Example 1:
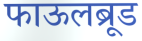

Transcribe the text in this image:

फाऊलब्रूड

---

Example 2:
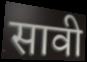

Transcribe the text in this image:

सावी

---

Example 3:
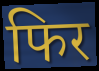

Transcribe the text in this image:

फिर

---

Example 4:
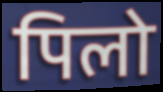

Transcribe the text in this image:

पिलो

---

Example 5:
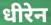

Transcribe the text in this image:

धीरेन